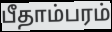
பீதாம்பரம்